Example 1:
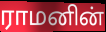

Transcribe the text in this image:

ராமனின்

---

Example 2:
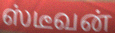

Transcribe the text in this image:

ஸ்டீவன்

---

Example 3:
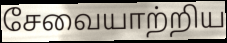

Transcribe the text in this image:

சேவையாற்றிய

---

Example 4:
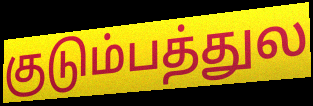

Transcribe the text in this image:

குடும்பத்துல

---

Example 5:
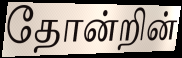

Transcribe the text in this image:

தோன்றின்